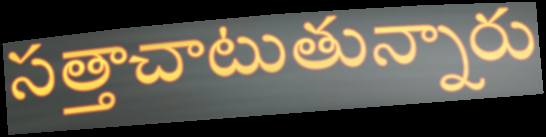
సత్తాచాటుతున్నారు